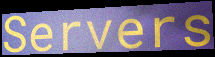
Servers